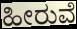
ಹೀರುವೆ